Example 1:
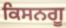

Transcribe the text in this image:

ਕਿਸਨਗੂ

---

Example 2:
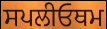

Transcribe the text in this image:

ਸਪਲੀਓਥਮ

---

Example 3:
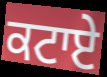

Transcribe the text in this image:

ਕਟਾਏ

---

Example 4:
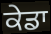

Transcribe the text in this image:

ਕੇਡਾ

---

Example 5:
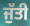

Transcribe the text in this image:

ਜੁੱਤੀ